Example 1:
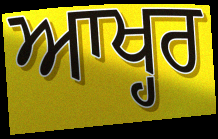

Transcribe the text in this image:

ਆਖ੍ਹਰ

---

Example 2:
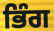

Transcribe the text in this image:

ਭਿੰਗ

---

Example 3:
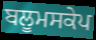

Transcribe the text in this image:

ਬਲੂਮਸਕੇਪ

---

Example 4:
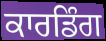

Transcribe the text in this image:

ਕਾਰਡਿੰਗ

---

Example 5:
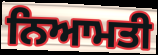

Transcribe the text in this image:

ਨਿਆਮਤੀ